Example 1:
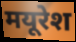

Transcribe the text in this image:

मयूरेश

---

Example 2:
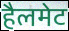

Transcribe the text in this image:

हैलमेट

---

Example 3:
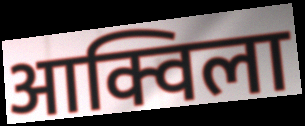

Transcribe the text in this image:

आक्विला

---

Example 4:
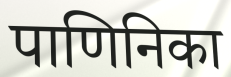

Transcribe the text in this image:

पाणिनिका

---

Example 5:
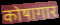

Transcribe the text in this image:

कोषागार